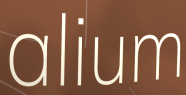
alium